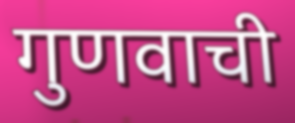
गुणवाची